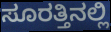
ಸೂರತ್ತಿನಲ್ಲಿ